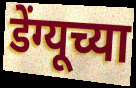
डेंग्यूच्या